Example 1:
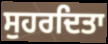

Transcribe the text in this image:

ਸੁਹਰਦਿਤਾ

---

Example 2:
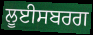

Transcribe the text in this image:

ਲੂਈਸਬਰਗ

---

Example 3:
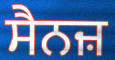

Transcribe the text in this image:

ਸੈਨਜ਼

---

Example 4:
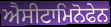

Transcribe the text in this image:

ਐਸੀਟਾਮਿਨੋਫੇਨ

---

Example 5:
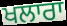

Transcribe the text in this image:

ਖਲਾਰਾ